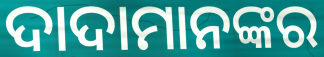
ଦାଦାମାନଙ୍କର